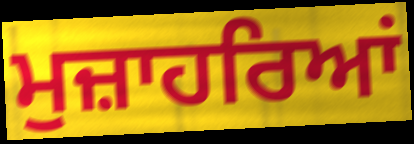
ਮੁਜ਼ਾਹਰਿਆਂ